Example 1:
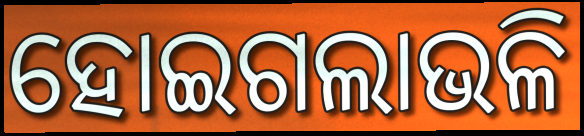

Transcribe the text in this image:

ହୋଇଗଲାଭଳି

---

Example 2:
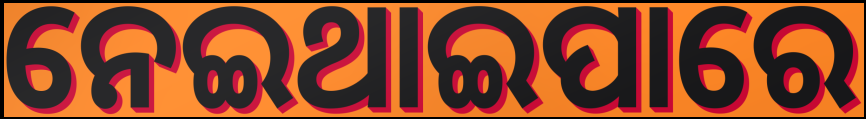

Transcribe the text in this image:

ନେଇଥାଇପାରେ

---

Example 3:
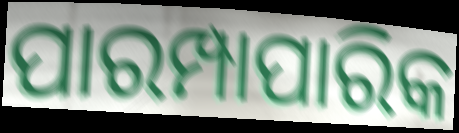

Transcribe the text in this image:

ପାରମ୍ପାପାରିକ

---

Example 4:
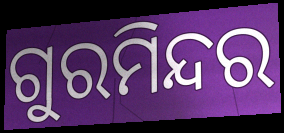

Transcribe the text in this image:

ଗୁରମିନ୍ଦର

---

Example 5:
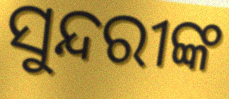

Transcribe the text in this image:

ସୁନ୍ଦରୀଙ୍କ